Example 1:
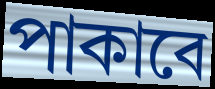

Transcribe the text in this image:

পাকাবে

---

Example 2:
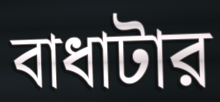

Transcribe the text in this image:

বাধাটার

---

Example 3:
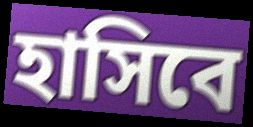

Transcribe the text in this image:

হাসিবে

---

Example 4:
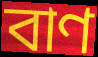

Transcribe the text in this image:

বাণ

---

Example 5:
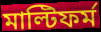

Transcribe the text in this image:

মাল্টিফর্ম